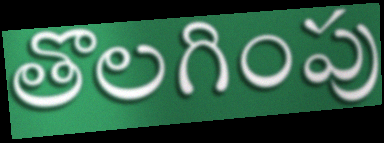
తొలగింపు